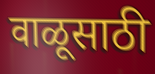
वाळूसाठी